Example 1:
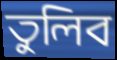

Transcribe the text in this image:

তুলিব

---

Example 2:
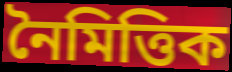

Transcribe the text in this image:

নৈমিত্তিক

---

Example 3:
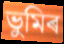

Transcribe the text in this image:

ভুমিৰ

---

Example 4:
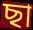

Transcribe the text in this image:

ছা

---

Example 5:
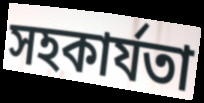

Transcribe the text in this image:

সহকাৰ্যতা